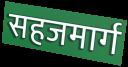
सहजमार्ग